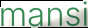
mansi